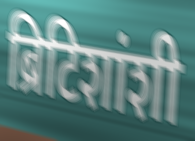
ब्रिटिशांशी